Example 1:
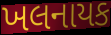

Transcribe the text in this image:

ખલનાયક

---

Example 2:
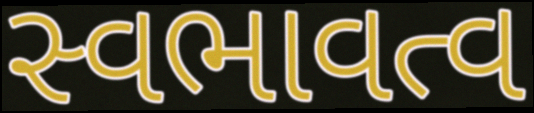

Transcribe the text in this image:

સ્વભાવત્વ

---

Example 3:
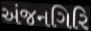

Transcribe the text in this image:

અંજનગિરિ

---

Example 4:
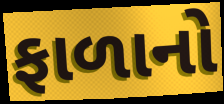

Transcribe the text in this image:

ફાળાનો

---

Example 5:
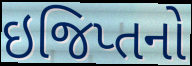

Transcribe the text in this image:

ઇજિપ્તનો